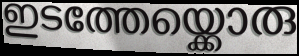
ഇടത്തേയ്ക്കൊരു